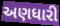
અણધારી